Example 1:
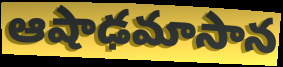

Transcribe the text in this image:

ఆషాఢమాసాన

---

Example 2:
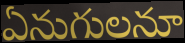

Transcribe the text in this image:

ఏనుగులనూ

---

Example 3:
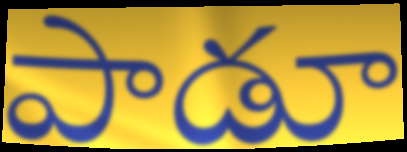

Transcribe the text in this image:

పాడూ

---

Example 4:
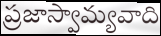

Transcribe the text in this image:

ప్రజాస్వామ్యవాది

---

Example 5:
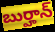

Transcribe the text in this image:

బుర్హాన్